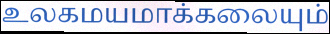
உலகமயமாக்கலையும்